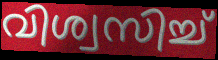
വിശ്വസിച്ച്